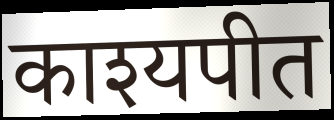
काश्यपीत